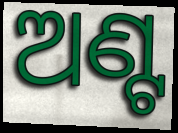
ଅଣ୍ଟ